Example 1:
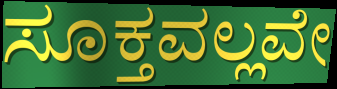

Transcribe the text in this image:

ಸೂಕ್ತವಲ್ಲವೇ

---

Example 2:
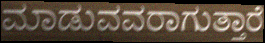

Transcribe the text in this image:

ಮಾಡುವವರಾಗುತ್ತಾರೆ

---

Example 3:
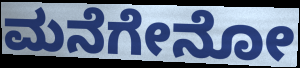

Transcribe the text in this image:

ಮನೆಗೇನೋ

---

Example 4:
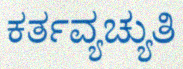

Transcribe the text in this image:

ಕರ್ತವ್ಯಚ್ಯುತಿ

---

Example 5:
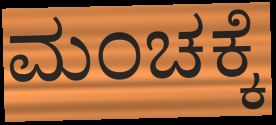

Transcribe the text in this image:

ಮಂಚಕ್ಕೆ